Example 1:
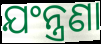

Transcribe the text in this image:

ଯଂନ୍ତ୍ରଣା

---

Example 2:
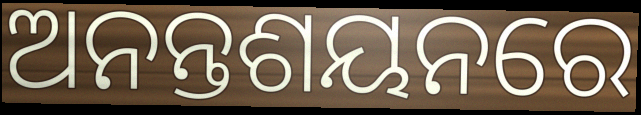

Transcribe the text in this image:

ଅନନ୍ତଶୟନରେ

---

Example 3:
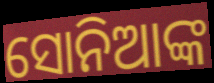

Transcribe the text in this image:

ସୋନିଆଙ୍କ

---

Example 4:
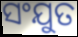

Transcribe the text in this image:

ସଂଯୁତ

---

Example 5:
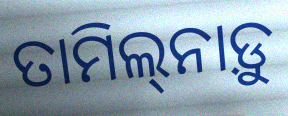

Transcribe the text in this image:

ତାମିଲ୍‌ନାଡ଼ୁ